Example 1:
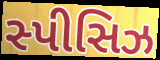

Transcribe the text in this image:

સ્પીસિઝ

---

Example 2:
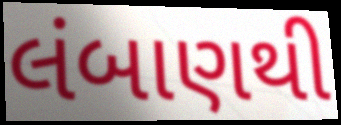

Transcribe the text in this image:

લંબાણથી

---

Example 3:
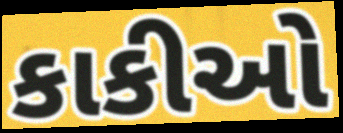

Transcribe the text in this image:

કાકીઓ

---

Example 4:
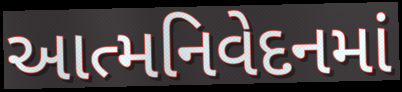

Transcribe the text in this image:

આત્મનિવેદનમાં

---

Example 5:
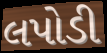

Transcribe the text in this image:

લપોડી